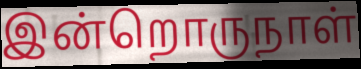
இன்றொருநாள்